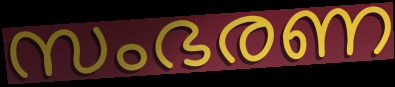
സംഭരണ